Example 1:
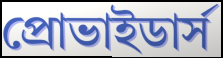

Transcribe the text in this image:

প্রোভাইডার্স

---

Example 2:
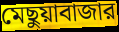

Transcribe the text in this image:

মেছুয়াবাজার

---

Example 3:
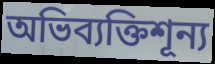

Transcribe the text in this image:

অভিব্যক্তিশূন্য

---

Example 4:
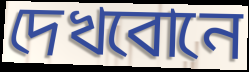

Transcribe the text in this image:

দেখবোনে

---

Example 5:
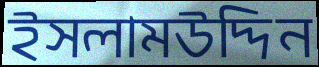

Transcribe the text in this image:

ইসলামউদ্দিন